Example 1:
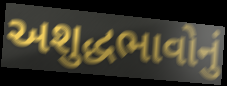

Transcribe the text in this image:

અશુદ્ધભાવોનું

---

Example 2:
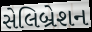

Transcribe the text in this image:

સેલિબ્રેશન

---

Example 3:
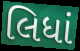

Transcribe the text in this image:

લિધાં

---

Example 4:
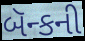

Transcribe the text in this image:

બૅન્કની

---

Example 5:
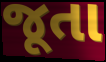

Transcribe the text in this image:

જૂતા